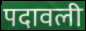
पदावली